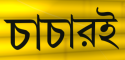
চাচারই